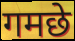
गमछे